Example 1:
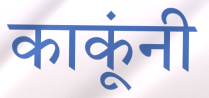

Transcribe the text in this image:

काकूंनी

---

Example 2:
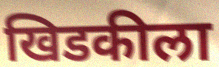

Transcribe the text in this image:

खिडकीला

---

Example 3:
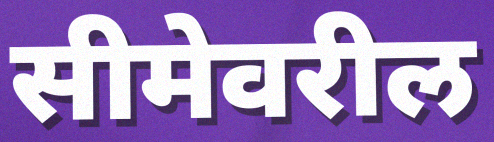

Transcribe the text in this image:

सीमेवरील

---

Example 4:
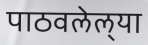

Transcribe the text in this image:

पाठवलेल्या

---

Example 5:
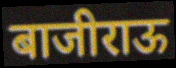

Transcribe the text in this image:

बाजीराऊ